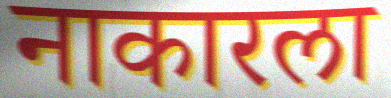
नाकारला